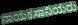
ನಾಯಕಸಾನಿಯರು